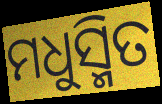
ମଧୁସ୍ମିତ